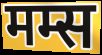
मम्स